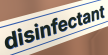
disinfectant